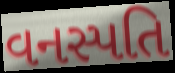
વનસ્પતિ